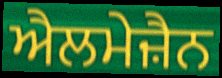
ਐਲਮੇਜ਼ੈਨ